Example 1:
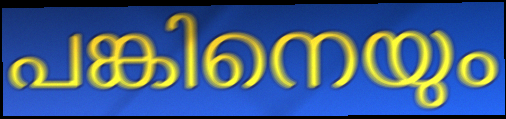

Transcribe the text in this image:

പങ്കിനെയും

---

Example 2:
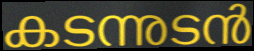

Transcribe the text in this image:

കടന്നുടൻ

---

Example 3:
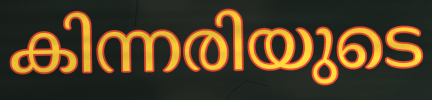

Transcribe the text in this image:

കിന്നരിയുടെ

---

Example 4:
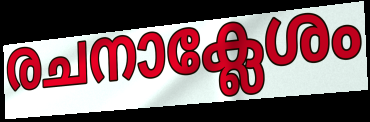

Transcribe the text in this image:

രചനാക്ലേശം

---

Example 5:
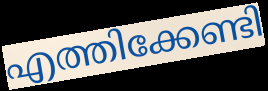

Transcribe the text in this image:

എത്തിക്കേണ്ടി